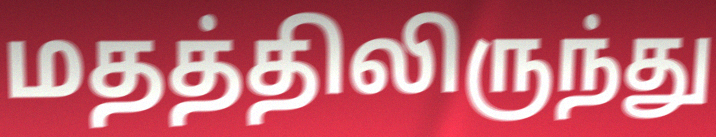
மதத்திலிருந்து